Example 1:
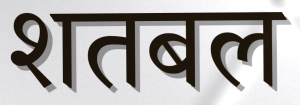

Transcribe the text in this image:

शतबल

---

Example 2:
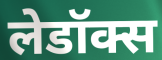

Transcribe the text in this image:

लेडॉक्स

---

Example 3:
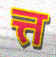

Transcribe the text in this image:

त्त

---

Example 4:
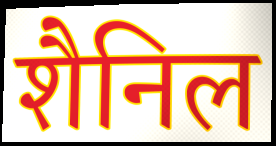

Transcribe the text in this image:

शैनिल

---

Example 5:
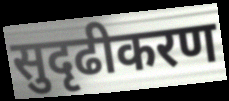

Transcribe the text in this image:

सुदृढीकरण